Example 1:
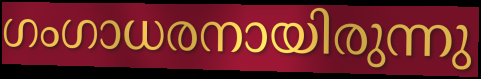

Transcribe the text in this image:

ഗംഗാധരനായിരുന്നു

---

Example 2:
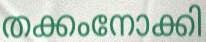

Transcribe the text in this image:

തക്കംനോക്കി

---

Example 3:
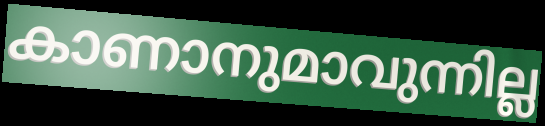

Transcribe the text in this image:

കാണാനുമാവുന്നില്ല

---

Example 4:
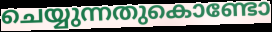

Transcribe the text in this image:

ചെയ്യുന്നതുകൊണ്ടോ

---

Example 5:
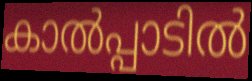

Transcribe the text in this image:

കാൽപ്പാടിൽ